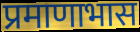
प्रमाणाभास